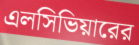
এলসিভিয়ারের